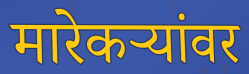
मारेकऱ्यांवर